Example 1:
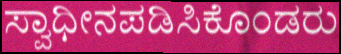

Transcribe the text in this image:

ಸ್ವಾಧೀನಪಡಿಸಿಕೊಂಡರು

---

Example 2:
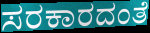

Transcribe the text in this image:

ಸರಕಾರದಂತೆ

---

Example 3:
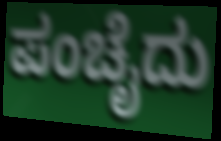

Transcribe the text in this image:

ಪಂಚೈದು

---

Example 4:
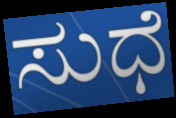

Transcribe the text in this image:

ಸುಧೆ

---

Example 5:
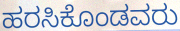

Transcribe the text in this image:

ಹರಸಿಕೊಂಡವರು